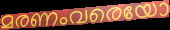
മരണംവരെയോ